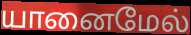
யானைமேல்